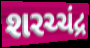
શરચ્ચંદ્ર